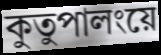
কুতুপালংয়ে